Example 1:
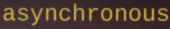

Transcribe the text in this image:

asynchronous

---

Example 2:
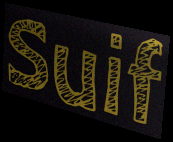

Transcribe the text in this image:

Suif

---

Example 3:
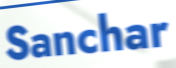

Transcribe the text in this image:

Sanchar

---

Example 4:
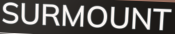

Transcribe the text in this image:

SURMOUNT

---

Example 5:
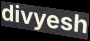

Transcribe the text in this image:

divyesh